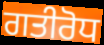
ਗਤੀਰੋਧ